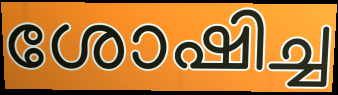
ശോഷിച്ച